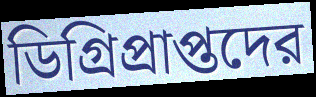
ডিগ্রিপ্রাপ্তদের